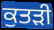
ਕੁਤੜੀ